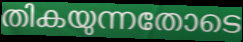
തികയുന്നതോടെ